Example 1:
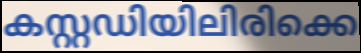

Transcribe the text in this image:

കസ്റ്റഡിയിലിരിക്കെ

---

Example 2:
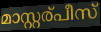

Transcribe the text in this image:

മാസ്റ്റര്പീസ്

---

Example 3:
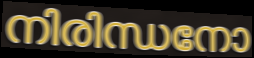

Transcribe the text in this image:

നിരിന്ധനോ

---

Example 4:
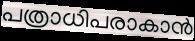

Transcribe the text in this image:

പത്രാധിപരാകാൻ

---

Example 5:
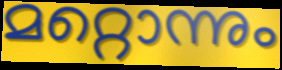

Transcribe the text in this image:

മറ്റൊന്നും